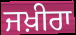
ਜਖ਼ੀਰਾ